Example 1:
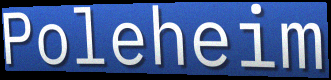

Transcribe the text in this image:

Poleheim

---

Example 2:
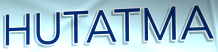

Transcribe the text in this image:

HUTATMA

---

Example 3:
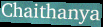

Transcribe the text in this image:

Chaithanya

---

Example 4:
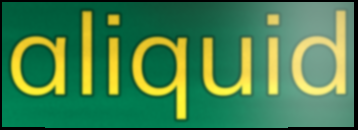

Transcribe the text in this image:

aliquid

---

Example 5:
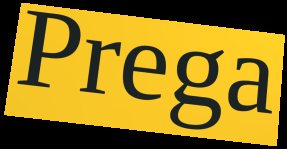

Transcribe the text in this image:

Prega